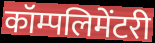
कॉम्पलिमेंटरी